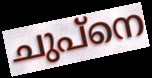
ചുപ്നെ